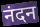
नंदन